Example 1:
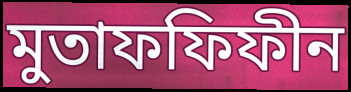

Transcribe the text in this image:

মুতাফফিফীন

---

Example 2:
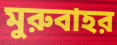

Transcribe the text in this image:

মুরুবাহর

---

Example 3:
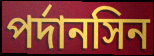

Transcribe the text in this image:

পর্দানসিন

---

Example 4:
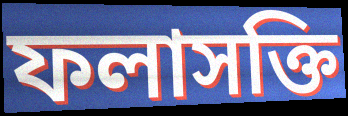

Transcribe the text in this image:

ফলাসক্তি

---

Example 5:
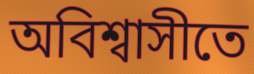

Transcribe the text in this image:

অবিশ্বাসীতে